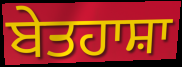
ਬੇਤਹਾਸ਼ਾ